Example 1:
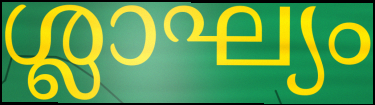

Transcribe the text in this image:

ശ്ലാഘ്യം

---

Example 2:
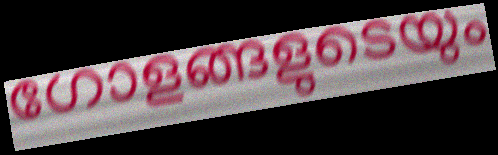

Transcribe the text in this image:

ഗോളങ്ങളുടെയും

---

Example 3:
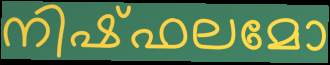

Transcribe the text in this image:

നിഷ്ഫലമോ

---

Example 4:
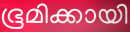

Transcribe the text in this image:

ഭൂമിക്കായി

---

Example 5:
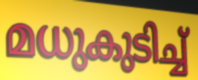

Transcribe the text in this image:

മധുകുടിച്ച്